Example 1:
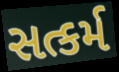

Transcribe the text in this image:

સત્કર્મ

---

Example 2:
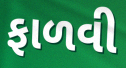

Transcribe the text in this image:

ફાળવી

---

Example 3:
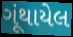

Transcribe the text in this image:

ગૂંથાયેલ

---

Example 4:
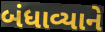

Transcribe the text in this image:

બંધાવ્યાને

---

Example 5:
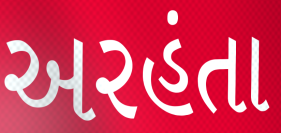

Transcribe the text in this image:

અરહંતા